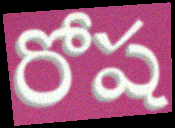
రోష